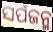
ସର୍ପଜନ୍ମ